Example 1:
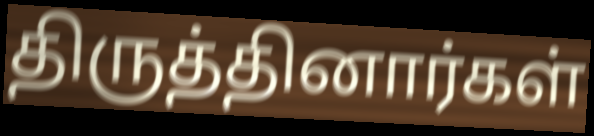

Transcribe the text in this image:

திருத்தினார்கள்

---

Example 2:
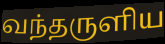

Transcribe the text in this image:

வந்தருளிய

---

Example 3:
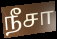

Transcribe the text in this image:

நீசா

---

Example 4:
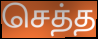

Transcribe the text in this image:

செத்த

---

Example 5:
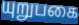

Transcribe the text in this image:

யுறுபகை